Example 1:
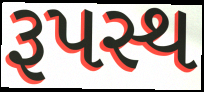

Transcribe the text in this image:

રૂપસ્થ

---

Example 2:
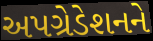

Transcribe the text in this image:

અપગ્રેડેશનને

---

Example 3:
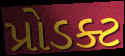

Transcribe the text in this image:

પ્રોડક્ટ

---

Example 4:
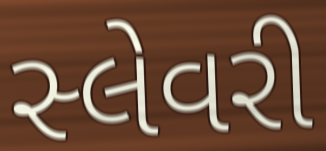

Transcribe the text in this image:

સ્લેવરી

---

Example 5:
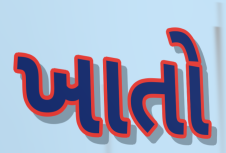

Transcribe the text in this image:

ખાતો